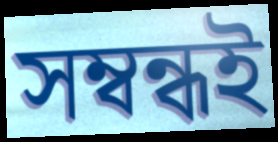
সম্বন্ধই